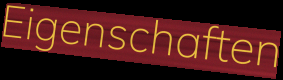
Eigenschaften